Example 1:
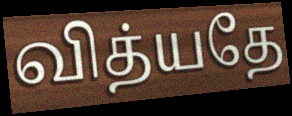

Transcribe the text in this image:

வித்யதே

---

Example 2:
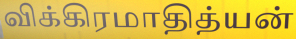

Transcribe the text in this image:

விக்கிரமாதித்யன்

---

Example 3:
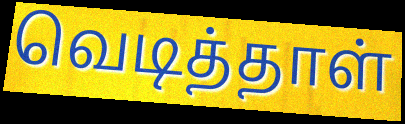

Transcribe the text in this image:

வெடித்தாள்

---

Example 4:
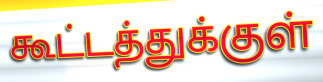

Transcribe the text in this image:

கூட்டத்துக்குள்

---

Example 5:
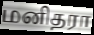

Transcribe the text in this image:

மனிதரா